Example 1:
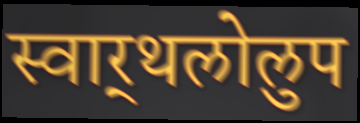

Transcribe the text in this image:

स्वार्थलोलुप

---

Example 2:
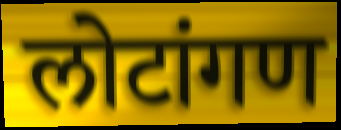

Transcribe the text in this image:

लोटांगण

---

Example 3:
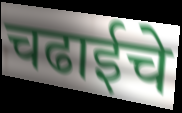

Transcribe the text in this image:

चढाईचे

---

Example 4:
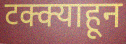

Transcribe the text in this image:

टक्क्याहून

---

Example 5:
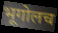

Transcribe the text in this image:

भूगोलच